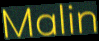
Malin